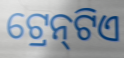
ଟ୍ରେନ୍‌ଟିଏ